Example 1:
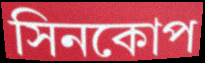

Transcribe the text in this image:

সিনকোপ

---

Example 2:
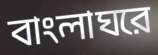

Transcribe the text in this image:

বাংলাঘরে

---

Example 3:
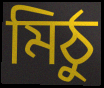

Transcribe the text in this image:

মিঠু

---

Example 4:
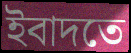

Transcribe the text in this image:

ইবাদতে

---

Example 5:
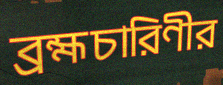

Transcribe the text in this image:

ব্রহ্মচারিণীর